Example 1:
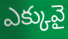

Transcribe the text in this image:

ఎక్కువై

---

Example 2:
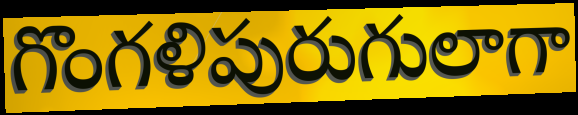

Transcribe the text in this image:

గొంగళిపురుగులాగా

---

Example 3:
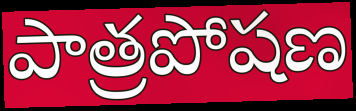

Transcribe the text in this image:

పాత్రపోషణ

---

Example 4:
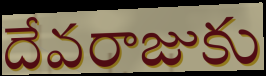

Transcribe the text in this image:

దేవరాజుకు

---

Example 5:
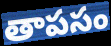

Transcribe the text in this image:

తాపసం